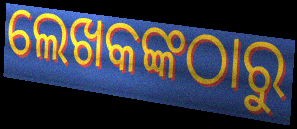
ଲେଖକଙ୍କଠାରୁ